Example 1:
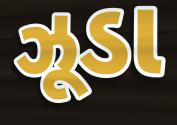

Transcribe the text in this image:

ઝૂડા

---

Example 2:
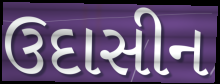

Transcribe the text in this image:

ઉદાસીન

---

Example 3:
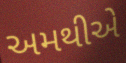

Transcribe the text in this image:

અમથીએ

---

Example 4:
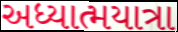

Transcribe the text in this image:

અધ્યાત્મયાત્રા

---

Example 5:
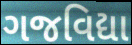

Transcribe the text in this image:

ગજવિદ્યા